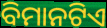
ବିମାନଟିଏ